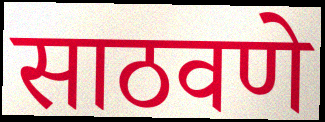
साठवणे